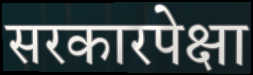
सरकारपेक्षा